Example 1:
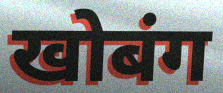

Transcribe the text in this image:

खोबंग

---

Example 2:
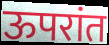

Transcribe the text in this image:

ऊपरांत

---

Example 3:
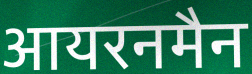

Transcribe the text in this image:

आयरनमैन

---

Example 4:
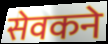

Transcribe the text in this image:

सेवकने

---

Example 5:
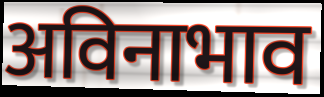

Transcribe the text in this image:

अविनाभाव